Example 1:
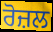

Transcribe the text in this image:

ਰੋਜ਼ਲ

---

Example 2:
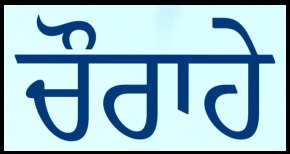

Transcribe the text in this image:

ਚੌਰਾਹੇ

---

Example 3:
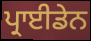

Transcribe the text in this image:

ਪ੍ਰਾਈਡੇਨ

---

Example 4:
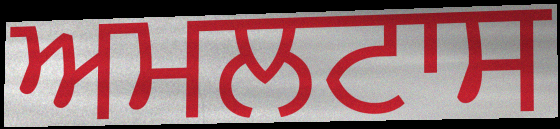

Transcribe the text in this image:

ਅਮਲਟਾਸ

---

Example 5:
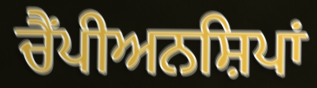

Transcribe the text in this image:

ਚੈਂਪੀਅਨਸ਼ਿਪਾਂ